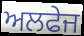
ਅਲਫੇਜ